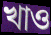
খাও